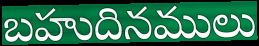
బహుదినములు